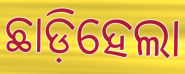
ଛାଡ଼ିହେଲା